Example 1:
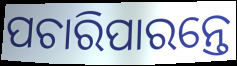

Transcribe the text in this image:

ପଚାରିପାରନ୍ତେ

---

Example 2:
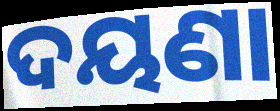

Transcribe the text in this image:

ଦୟଣା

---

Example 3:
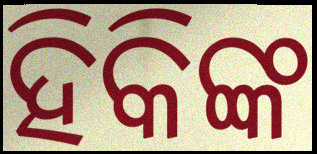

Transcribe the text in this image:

ହିକିଙ୍କ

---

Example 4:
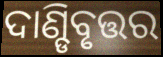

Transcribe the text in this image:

ଦାଣ୍ଡିବୃତ୍ତର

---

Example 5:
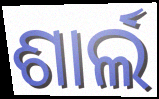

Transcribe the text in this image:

ଶାର୍ଲ